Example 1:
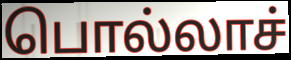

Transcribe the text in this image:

பொல்லாச்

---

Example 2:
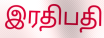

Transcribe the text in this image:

இரதிபதி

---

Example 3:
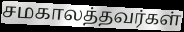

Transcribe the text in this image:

சமகாலத்தவர்கள்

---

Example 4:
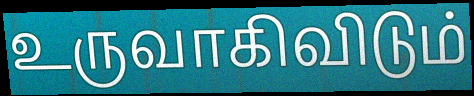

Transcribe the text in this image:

உருவாகிவிடும்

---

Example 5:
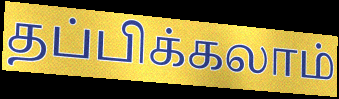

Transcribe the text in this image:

தப்பிக்கலாம்